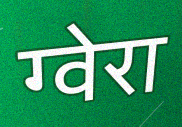
ग्वेरा